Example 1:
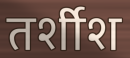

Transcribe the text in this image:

तर्शीश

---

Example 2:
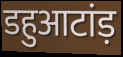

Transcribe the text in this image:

डहुआटांड़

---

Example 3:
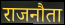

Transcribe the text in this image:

राजनौता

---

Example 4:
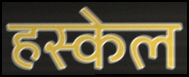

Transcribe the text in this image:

हस्केल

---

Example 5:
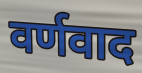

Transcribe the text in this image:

वर्णवाद